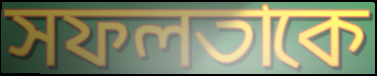
সফলতাকে